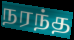
நரந்த